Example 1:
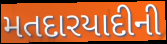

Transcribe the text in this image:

મતદારયાદીની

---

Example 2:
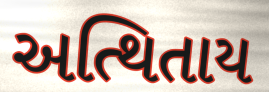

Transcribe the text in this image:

અત્થિતાય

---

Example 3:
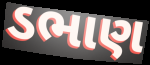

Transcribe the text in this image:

ડભાણ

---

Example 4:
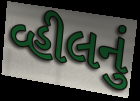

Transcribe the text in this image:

વ્હીલનું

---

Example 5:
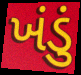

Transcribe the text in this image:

ખંડું